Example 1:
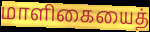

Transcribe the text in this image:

மாளிகையைத்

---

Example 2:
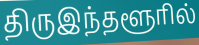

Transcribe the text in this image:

திருஇந்தளூரில்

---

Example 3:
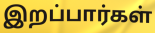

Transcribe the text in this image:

இறப்பார்கள்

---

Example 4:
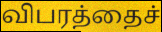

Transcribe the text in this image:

விபரத்தைச்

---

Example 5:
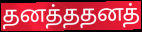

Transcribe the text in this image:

தனத்ததனத்